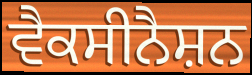
ਵੈਕਸੀਨੈਸ਼ਨ